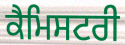
ਕੈਮਿਸਟਰੀ